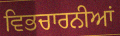
ਵਿਭਚਾਰਨੀਆਂ